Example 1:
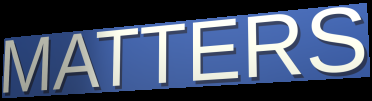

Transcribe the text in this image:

MATTERS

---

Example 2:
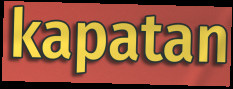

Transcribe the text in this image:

kapatan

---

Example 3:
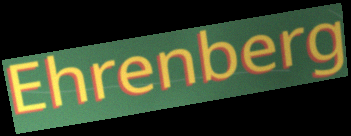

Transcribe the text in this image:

Ehrenberg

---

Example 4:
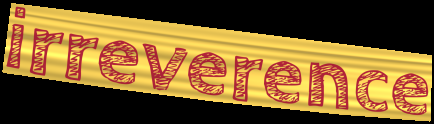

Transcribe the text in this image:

irreverence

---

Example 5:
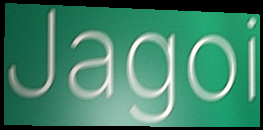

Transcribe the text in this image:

Jagoi